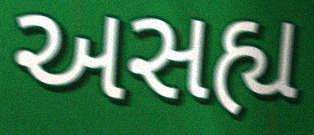
અસહ્ય